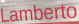
Lamberto